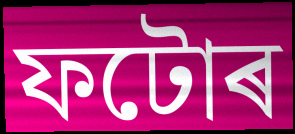
ফটোৰ